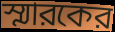
স্মারকের